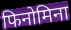
फिनोमिना